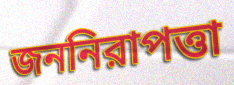
জননিরাপত্তা